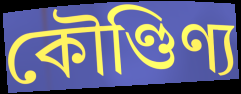
কৌণ্ডিণ্য